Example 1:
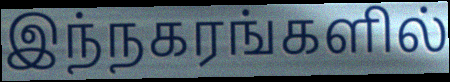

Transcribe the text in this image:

இந்நகரங்களில்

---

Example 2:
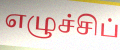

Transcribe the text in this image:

எழுச்சிப்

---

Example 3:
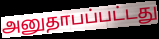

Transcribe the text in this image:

அனுதாபப்பட்டது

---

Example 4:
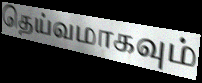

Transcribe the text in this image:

தெய்வமாகவும்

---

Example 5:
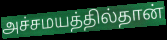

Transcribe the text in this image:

அச்சமயத்தில்தான்